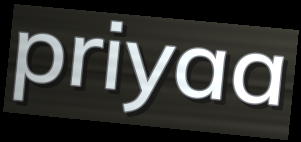
priyaa